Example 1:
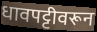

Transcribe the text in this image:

धावपट्टीवरून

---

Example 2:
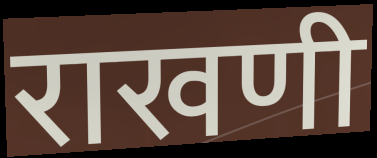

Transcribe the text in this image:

राखणी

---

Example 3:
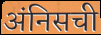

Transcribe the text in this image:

अंनिसची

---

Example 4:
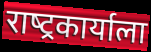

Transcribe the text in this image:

राष्ट्रकार्याला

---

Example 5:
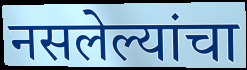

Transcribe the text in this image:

नसलेल्यांचा